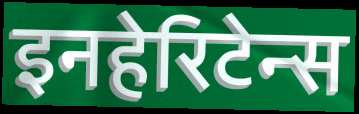
इनहेरिटेन्स